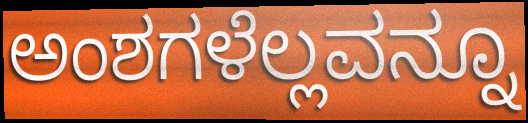
ಅಂಶಗಳೆಲ್ಲವನ್ನೂ